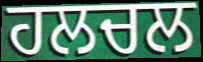
ਹਲਚਲ